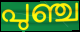
പുഞ്ച